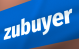
zubuyer